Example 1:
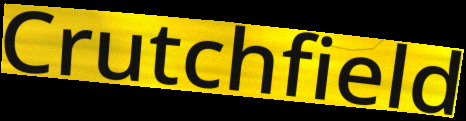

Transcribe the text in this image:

Crutchfield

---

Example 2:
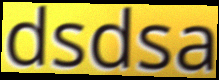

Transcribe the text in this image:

dsdsa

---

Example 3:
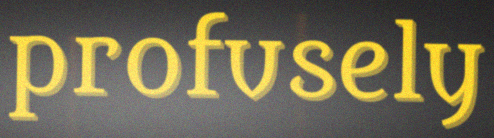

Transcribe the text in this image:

profusely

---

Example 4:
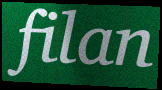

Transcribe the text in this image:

filan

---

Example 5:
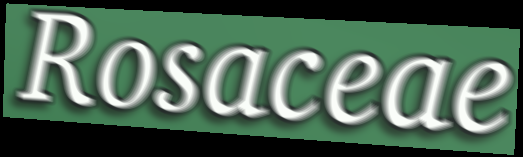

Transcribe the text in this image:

Rosaceae